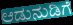
ಆಡುನುಡಿಗೆ